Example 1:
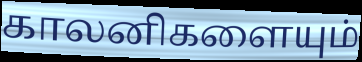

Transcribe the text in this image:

காலனிகளையும்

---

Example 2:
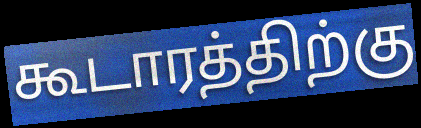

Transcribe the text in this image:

கூடாரத்திற்கு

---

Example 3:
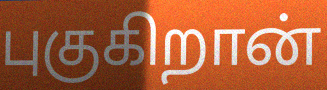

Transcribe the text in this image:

புகுகிறான்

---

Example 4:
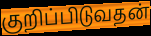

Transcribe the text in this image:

குறிப்பிடுவதன்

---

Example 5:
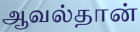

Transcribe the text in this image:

ஆவல்தான்